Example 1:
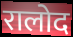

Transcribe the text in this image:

रालोद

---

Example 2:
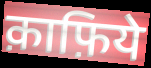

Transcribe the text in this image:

क़ाफ़िये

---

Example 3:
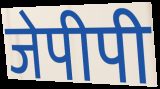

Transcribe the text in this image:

जेपीपी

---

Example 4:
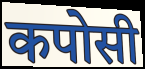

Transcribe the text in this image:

कपोसी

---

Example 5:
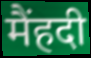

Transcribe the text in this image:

मैंहदी